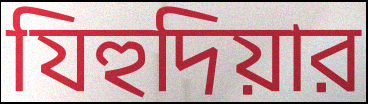
যিহুদিয়ার